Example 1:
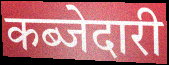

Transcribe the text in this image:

कब्जेदारी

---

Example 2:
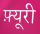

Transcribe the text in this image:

फ़्यूरी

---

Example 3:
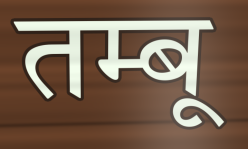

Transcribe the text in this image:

तम्‍बू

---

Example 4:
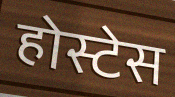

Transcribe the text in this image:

होस्टेस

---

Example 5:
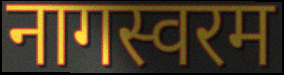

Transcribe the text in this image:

नागस्वरम